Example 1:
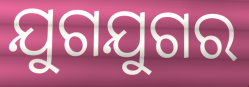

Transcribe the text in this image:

ଯୁଗଯୁଗର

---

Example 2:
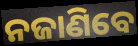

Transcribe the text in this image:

ନଜାଣିବେ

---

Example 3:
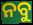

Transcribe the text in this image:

ନବୁ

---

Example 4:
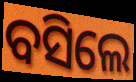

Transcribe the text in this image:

ବସିଲେ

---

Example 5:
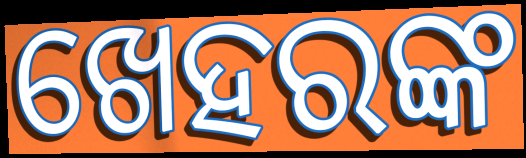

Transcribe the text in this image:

ଖେହରଙ୍କ